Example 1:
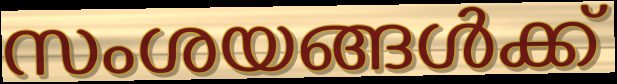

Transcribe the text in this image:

സംശയങ്ങൾക്ക്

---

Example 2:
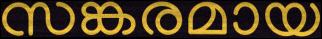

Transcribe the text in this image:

സങ്കരമായ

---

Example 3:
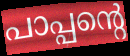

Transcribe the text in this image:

പാപ്പന്റെ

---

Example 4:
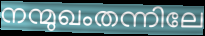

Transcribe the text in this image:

നന്മുഖംതന്നിലേ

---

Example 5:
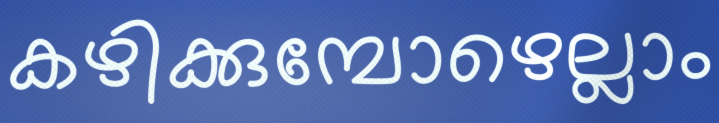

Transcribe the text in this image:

കഴിക്കുമ്പോഴെല്ലാം